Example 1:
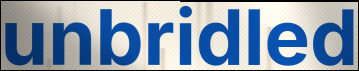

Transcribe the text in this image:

unbridled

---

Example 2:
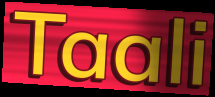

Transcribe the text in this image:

Taali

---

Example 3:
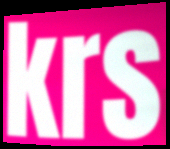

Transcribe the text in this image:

krs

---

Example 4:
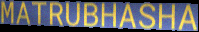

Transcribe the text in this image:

MATRUBHASHA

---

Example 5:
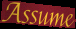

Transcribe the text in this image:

Assume